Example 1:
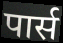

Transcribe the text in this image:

पार्स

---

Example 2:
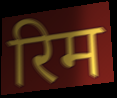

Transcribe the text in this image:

रिम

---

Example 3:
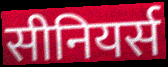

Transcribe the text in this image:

सीनियर्स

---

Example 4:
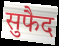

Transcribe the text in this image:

सुफैद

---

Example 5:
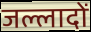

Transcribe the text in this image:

जल्लादों